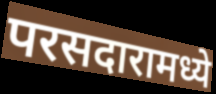
परसदारामध्ये